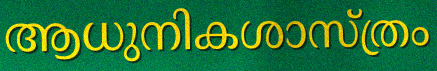
ആധുനികശാസ്ത്രം